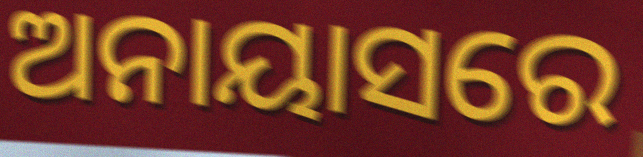
ଅନାୟାସରେ